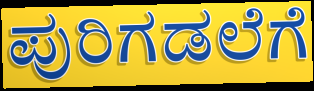
ಪುರಿಗಡಲೆಗೆ